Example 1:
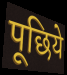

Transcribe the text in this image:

पूछिये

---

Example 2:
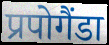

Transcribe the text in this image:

प्रपोगैंडा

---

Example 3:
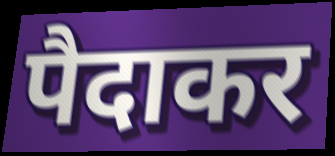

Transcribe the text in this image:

पैदाकर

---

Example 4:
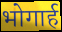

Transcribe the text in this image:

भोगार्ह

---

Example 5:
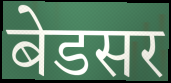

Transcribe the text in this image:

बेडसर